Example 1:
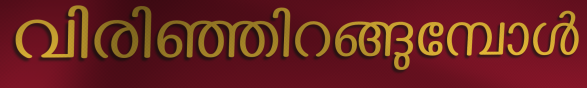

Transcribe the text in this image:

വിരിഞ്ഞിറങ്ങുമ്പോൾ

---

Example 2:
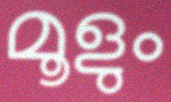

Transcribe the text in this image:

മൂളും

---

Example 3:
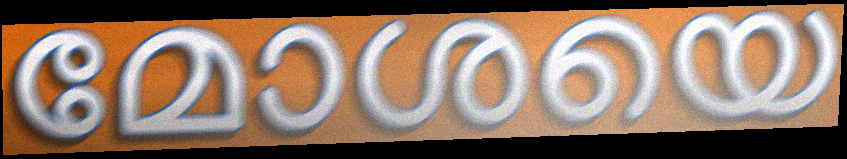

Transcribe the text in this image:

മോശയെ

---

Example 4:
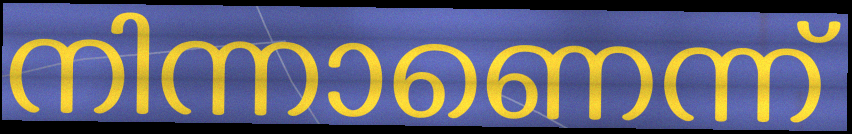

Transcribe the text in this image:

നിന്നാണെന്ന്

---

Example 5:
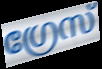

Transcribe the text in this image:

ഗ്രേസ്